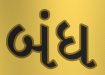
બંધ